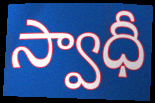
స్వాధీ